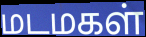
மடமகள்